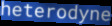
heterodyne